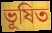
ভূষিত